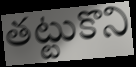
తట్టుకొని